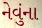
નેવુંના